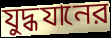
যুদ্ধযানের